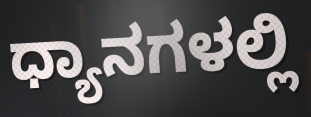
ಧ್ಯಾನಗಳಲ್ಲಿ